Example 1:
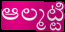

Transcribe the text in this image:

ఆల్మట్టి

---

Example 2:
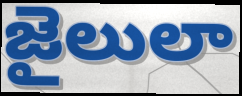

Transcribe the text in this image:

జైలులా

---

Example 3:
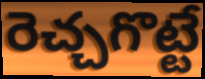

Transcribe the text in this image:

రెచ్చగొట్టే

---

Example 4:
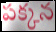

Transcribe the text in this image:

పక్కన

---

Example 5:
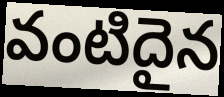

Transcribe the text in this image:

వంటిదైన